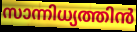
സാന്നിധ്യത്തിൻ